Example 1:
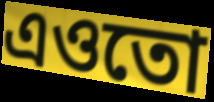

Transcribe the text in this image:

এওতো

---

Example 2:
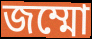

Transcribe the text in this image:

জম্মো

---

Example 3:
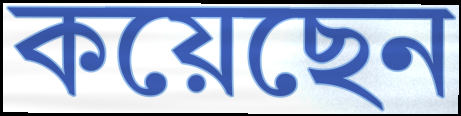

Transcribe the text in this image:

কয়েছেন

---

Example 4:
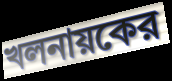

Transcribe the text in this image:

খলনায়কের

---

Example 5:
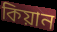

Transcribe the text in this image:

কিয়ান